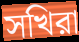
সখিরা